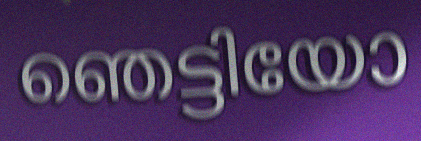
ഞെട്ടിയോ